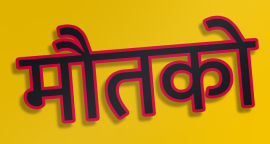
मौतको